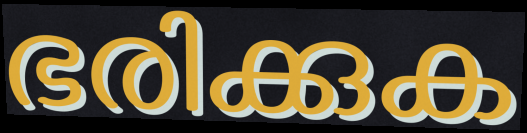
ഭരിക്കുക